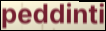
peddinti